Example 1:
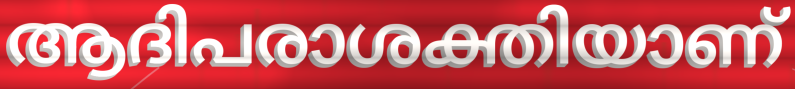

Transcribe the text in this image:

ആദിപരാശക്തിയാണ്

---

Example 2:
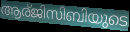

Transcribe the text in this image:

ആര്ജിസിബിയുടെ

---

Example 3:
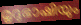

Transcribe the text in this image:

മൃദുഭാഷിയും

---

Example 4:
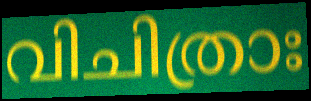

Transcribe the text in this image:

വിചിത്രാഃ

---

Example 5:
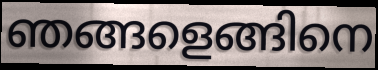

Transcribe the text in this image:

ഞങ്ങളെങ്ങിനെ